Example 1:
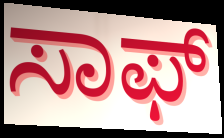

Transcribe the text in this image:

ಸಾಫ್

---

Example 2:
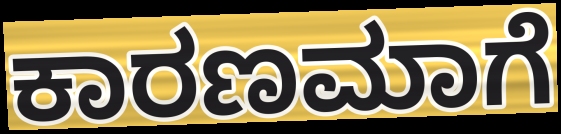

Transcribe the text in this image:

ಕಾರಣಮಾಗೆ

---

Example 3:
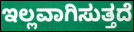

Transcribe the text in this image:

ಇಲ್ಲವಾಗಿಸುತ್ತದೆ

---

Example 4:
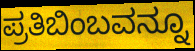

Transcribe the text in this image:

ಪ್ರತಿಬಿಂಬವನ್ನೂ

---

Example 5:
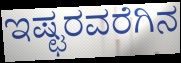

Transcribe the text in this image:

ಇಷ್ಟರವರೆಗಿನ